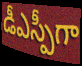
డీఎస్పీగా